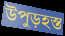
উপুড়হস্ত